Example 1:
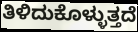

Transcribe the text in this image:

ತಿಳಿದುಕೊಳ್ಳುತ್ತದೆ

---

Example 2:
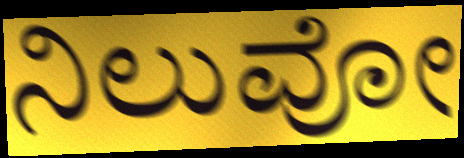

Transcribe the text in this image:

ನಿಲುವೋ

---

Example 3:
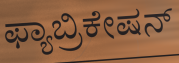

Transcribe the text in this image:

ಫ್ಯಾಬ್ರಿಕೇಷನ್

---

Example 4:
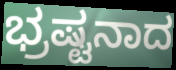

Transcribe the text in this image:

ಭ್ರಷ್ಟನಾದ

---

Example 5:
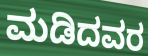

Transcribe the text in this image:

ಮಡಿದವರ